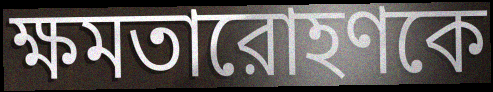
ক্ষমতারোহণকে